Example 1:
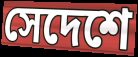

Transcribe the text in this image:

সেদেশে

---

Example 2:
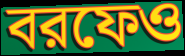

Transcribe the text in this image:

বরফেও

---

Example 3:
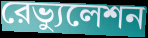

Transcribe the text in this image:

রেভ্যুলেশন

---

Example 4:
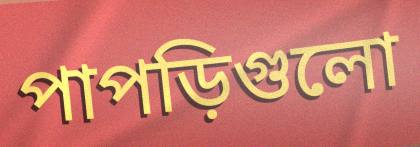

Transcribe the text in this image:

পাপড়িগুলো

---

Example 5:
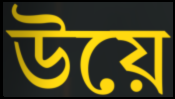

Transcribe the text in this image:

উয়ে